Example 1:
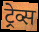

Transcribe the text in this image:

ट्रेव्स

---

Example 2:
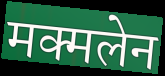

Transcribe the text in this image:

मक्मलेन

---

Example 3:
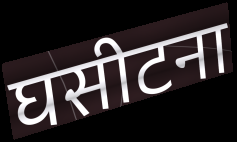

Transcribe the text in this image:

घसीटना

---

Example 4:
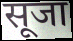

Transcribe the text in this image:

सूजा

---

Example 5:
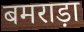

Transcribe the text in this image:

बमराड़ा